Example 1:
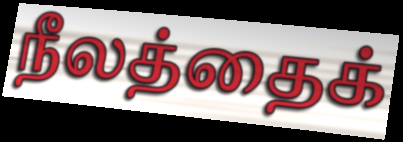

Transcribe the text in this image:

நீலத்தைக்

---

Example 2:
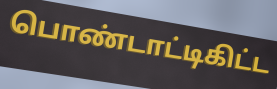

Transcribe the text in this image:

பொண்டாட்டிகிட்ட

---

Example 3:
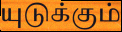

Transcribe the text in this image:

யுடுக்கும்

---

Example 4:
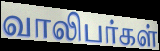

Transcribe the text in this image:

வாலிபர்கள்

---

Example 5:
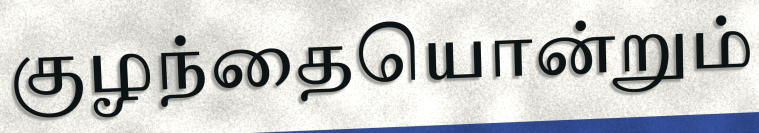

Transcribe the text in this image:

குழந்தையொன்றும்